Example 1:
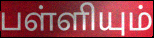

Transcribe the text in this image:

பள்ளியும்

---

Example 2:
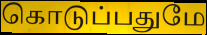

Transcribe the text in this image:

கொடுப்பதுமே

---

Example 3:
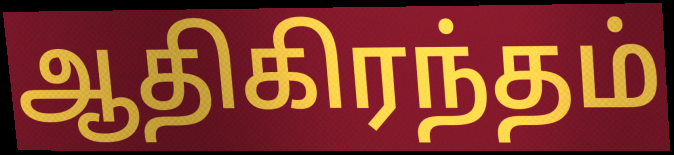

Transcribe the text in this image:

ஆதிகிரந்தம்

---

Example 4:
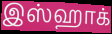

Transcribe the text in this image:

இஸ்ஹாக்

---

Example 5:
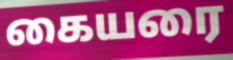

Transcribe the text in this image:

கையரை